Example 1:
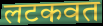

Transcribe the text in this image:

लटकवत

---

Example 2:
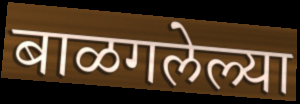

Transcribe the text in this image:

बाळगलेल्या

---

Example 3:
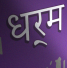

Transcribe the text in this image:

धर्म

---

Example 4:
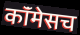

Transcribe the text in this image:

कॉंमेसच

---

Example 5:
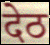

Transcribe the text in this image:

देठ